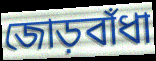
জোড়বাঁধা